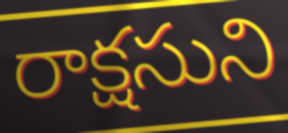
రాక్షసుని